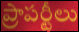
ప్రాపర్టీలు